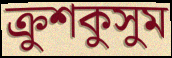
ক্রুশকুসুম